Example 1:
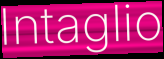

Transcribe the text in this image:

Intaglio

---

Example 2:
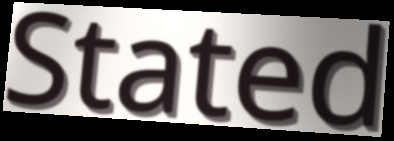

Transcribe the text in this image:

Stated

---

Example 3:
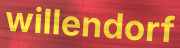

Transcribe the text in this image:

willendorf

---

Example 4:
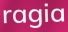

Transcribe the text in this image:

ragia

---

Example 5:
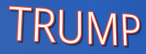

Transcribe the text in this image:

TRUMP